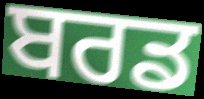
ਬਰਡ